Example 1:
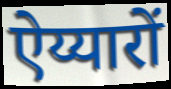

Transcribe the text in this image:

ऐय्यारों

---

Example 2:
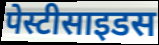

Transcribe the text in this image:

पेस्टीसाइडस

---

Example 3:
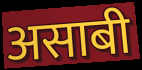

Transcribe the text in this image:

असाबी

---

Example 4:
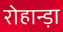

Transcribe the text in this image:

रोहान्ड़ा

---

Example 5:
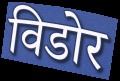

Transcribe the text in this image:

विडोर